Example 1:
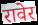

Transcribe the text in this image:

रावेर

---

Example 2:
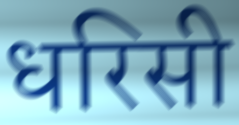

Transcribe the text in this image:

धरिसी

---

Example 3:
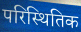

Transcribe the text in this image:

परिस्थितिक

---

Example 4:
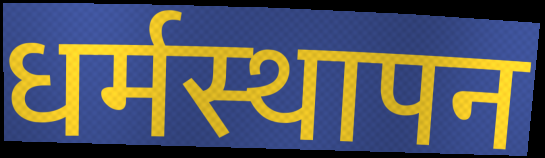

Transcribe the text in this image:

धर्मस्थापन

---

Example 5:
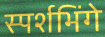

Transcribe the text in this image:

स्पर्शभिंगे